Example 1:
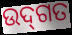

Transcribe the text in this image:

ଉଦ୍‌ଗତ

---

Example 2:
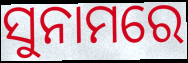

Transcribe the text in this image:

ସୁନାମରେ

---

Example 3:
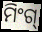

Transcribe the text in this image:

ମିଂଗ୍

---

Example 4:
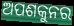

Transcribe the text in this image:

ଅପଶକୁନର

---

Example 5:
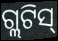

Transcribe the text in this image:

ଗ୍ଲଟିସ୍